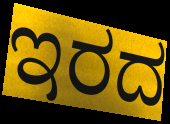
ಇರದ